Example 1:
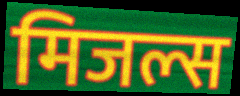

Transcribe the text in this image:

मिजल्स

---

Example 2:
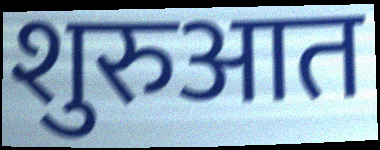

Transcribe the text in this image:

शुरुआत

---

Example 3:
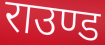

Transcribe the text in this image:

राउण्ड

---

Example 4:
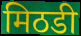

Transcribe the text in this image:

मिठडी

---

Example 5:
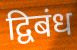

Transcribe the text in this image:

द्विबंध